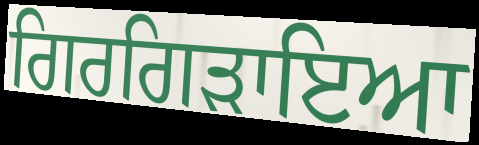
ਗਿਰਗਿੜਾਇਆ